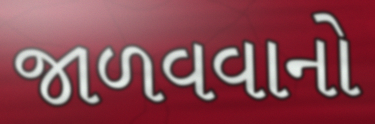
જાળવવાનો